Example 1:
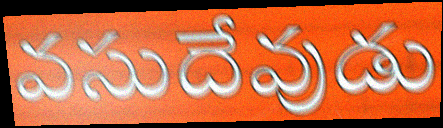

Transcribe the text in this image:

వసుదేవుడు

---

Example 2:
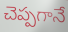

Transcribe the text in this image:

చెప్పగానే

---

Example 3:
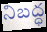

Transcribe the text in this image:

నిబద్ధ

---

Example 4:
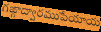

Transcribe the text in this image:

గఙ్గాద్వారముపేయాయ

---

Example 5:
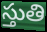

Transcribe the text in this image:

స్తుతి